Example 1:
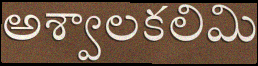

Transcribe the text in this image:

అశ్వాలకలిమి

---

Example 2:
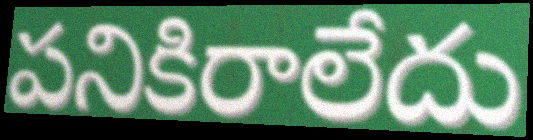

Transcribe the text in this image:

పనికిరాలేదు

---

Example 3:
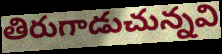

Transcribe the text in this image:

తిరుగాడుచున్నవి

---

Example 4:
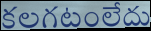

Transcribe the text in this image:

కలగటంలేదు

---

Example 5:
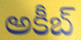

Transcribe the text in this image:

అకీబ్